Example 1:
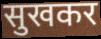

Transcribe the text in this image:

सुखकर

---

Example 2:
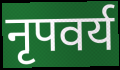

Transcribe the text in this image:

नृपवर्य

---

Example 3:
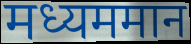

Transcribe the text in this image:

मध्यममान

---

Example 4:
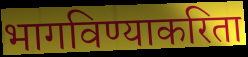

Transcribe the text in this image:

भागविण्याकरिता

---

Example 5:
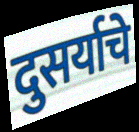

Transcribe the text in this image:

दुसर्याचे